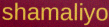
shamaliyo